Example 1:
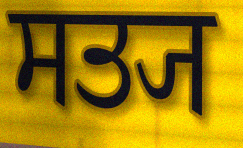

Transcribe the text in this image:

ਸਤ੍ਯ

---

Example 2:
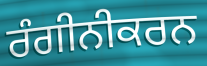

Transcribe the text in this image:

ਰੰਗੀਨੀਕਰਨ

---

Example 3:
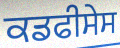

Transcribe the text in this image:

ਕਡਫੀਸੇਸ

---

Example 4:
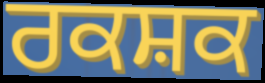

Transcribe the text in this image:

ਰਕਸ਼ਕ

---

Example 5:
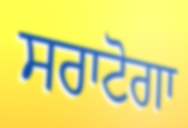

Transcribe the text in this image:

ਸਰਾਟੋਗਾ